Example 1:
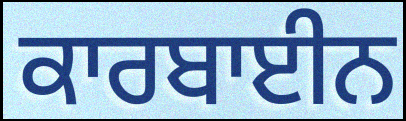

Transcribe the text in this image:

ਕਾਰਬਾਈਨ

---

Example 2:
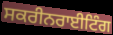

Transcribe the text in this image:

ਸਕਰੀਨਰਾਈਟਿੰਗ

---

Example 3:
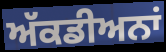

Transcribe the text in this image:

ਅੱਕਡੀਅਨਾਂ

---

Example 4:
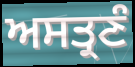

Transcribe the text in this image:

ਅਸਤ੍ਰਣੰ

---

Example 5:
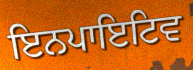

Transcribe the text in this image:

ਇਨਪਾਇਟਿਵ